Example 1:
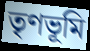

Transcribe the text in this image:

তৃণভূমি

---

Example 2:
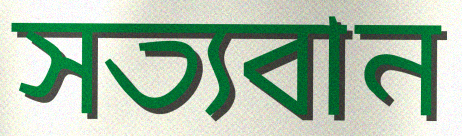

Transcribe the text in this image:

সত্যবান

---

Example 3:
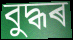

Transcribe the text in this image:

বুদ্ধৰ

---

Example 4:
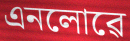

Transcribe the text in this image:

এনলোৱে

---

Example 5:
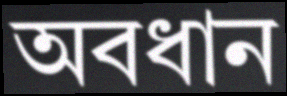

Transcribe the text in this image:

অবধান